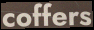
coffers